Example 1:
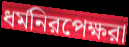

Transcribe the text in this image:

ধর্মনিরপেক্ষরা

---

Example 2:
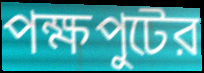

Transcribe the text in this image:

পক্ষপুটের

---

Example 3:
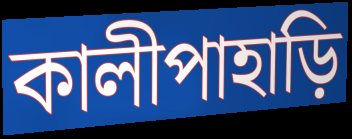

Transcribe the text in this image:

কালীপাহাড়ি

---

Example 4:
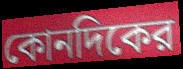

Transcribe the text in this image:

কোনদিকের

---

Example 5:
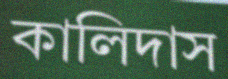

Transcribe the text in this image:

কালিদাস